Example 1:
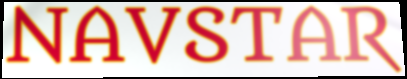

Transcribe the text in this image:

NAVSTAR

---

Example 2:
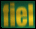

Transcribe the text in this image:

fiel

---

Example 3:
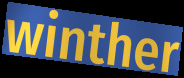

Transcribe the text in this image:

winther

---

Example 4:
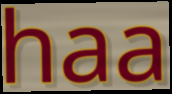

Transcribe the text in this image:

haa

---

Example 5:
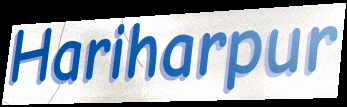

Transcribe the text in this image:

Hariharpur